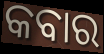
କବାର